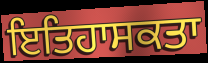
ਇਤਿਹਾਸਕਤਾ